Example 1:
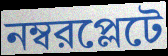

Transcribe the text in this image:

নম্বরপ্লেটে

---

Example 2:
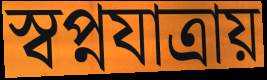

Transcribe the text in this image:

স্বপ্নযাত্রায়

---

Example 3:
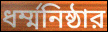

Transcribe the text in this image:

ধর্ম্মনিষ্ঠার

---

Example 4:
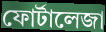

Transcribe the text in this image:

ফোর্টালেজা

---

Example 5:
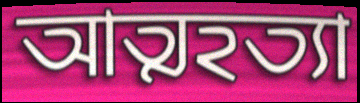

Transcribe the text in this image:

আত্মহত্যা